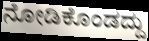
ನೋಡಿಕೊಂಡದ್ದು